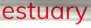
estuary